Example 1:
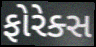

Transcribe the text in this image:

ફોરેક્સ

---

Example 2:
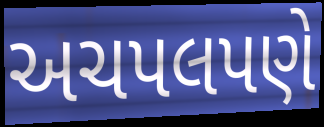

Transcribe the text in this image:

અચપલપણે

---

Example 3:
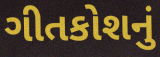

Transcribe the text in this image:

ગીતકોશનું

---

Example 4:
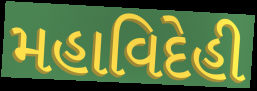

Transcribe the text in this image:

મહાવિદેહી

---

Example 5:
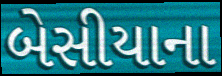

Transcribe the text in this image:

બેસીયાના